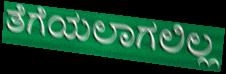
ತೆಗೆಯಲಾಗಲಿಲ್ಲ